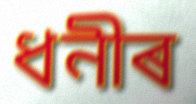
ধনীৰ